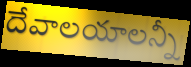
దేవాలయాలన్నీ